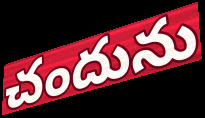
చందును